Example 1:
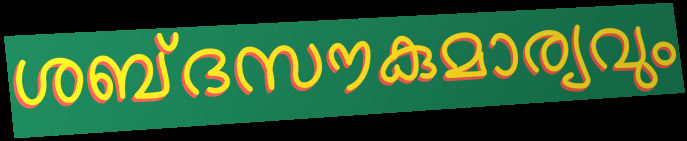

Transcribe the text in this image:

ശബ്ദസൗകുമാര്യവും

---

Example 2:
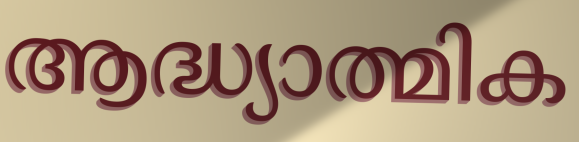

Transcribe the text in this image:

ആദ്ധ്യാത്മിക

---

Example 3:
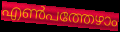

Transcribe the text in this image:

എൺപത്തേഴാം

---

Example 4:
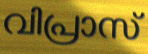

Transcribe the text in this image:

വിപ്രാസ്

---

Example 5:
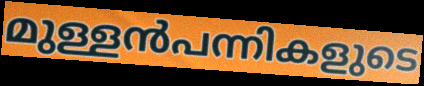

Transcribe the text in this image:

മുള്ളൻപന്നികളുടെ